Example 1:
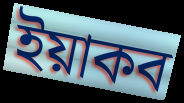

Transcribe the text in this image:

ইয়াকব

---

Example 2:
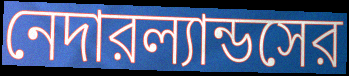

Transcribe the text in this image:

নেদারল্যান্ডসের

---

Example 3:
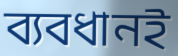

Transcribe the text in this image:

ব্যবধানই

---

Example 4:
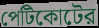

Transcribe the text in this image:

পেটিকোটের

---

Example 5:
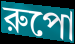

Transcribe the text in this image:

রুপো